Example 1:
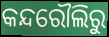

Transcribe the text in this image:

କନ୍ଦରୌଲିରୁ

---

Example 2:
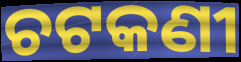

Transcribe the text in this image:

ଚଟକଣୀ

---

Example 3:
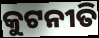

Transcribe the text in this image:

କୁଟନୀତି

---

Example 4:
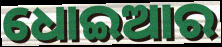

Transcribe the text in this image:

ଧୋଇଆର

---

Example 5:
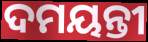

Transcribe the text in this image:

ଦମୟନ୍ତୀ